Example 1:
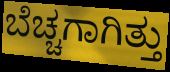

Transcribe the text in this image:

ಬೆಚ್ಚಗಾಗಿತ್ತು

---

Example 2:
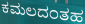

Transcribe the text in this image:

ಕಮಲದಂತಹ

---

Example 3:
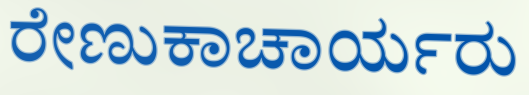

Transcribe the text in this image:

ರೇಣುಕಾಚಾರ್ಯರು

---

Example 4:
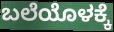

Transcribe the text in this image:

ಬಲೆಯೊಳಕ್ಕೆ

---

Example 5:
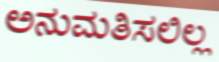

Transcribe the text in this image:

ಅನುಮತಿಸಲಿಲ್ಲ